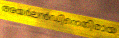
അയർലൻഡിനെതിരായ